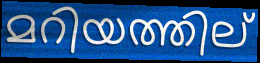
മറിയത്തില്